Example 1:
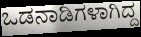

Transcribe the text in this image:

ಒಡನಾಡಿಗಳಾಗಿದ್ದ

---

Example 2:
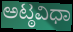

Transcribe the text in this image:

ಅಟ್ಠವಿಧಾ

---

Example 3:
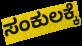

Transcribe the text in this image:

ಸಂಕುಲಕ್ಕೆ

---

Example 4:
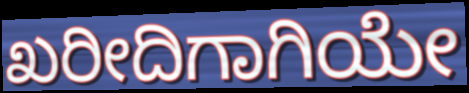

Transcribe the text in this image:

ಖರೀದಿಗಾಗಿಯೇ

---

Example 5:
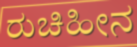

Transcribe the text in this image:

ರುಚಿಹೀನ